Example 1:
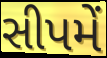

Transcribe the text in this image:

સીપમેં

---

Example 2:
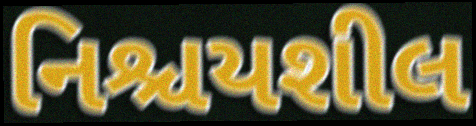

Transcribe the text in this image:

નિશ્ચયશીલ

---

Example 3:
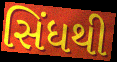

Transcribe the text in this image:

સિંધથી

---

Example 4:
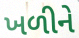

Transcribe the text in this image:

ખળીને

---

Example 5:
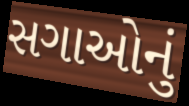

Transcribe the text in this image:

સગાઓનું